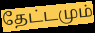
தேட்டமும்